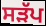
ਸੜੱਪ